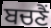
ਬਚਣੈਂ